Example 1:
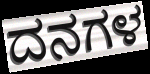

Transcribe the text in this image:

ದನಗಳ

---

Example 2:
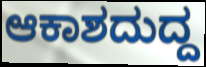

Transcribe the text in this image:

ಆಕಾಶದುದ್ದ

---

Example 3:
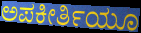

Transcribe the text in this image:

ಅಪಕೀರ್ತಿಯೂ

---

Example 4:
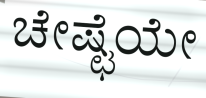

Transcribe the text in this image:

ಚೇಷ್ಟೆಯೇ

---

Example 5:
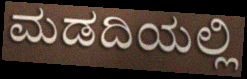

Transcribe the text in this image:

ಮಡದಿಯಲ್ಲಿ